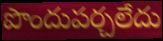
పొందుపర్చలేదు